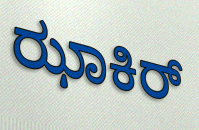
ಝಾಕಿರ್